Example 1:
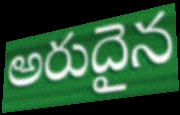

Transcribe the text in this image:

అరుదైన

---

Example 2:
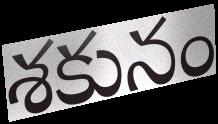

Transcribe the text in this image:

శకునం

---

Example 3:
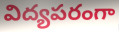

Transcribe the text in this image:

విద్యపరంగా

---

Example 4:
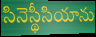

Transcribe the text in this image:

సినెస్థీసియాను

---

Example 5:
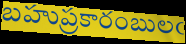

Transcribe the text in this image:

బహుప్రకారంబులఁ